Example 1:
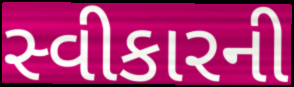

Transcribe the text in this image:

સ્વીકારની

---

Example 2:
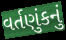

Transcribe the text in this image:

વર્તણુંકનું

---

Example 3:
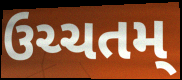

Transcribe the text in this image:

ઉચ્ચતમ્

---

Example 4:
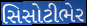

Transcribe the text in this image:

સિસોટીભેર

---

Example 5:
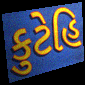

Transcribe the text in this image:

કુટેહિ